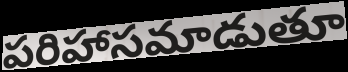
పరిహాసమాడుతూ